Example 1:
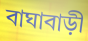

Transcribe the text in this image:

বাঘাবাড়ী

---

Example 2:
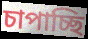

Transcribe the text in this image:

চাপাচ্ছি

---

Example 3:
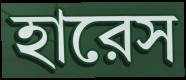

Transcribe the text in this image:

হারেস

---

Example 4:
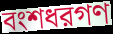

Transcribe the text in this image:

বংশধরগণ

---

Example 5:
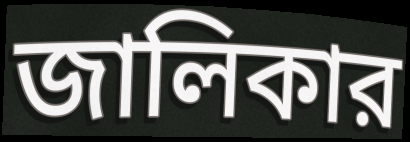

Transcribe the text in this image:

জালিকার